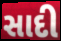
સાદી